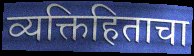
व्यक्तिहिताचा